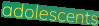
adolescents